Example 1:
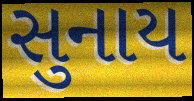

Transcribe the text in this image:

સુનાય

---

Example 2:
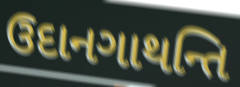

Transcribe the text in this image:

ઉદાનગાથન્તિ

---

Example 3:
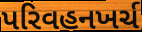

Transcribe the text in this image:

પરિવહનખર્ચ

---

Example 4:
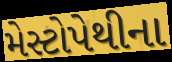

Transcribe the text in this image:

મેસ્ટોપેથીના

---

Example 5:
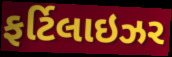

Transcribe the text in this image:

ફર્ટિલાઇઝર